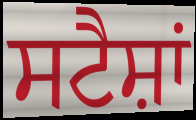
ਸਟੈਸ਼ਾਂ